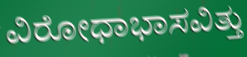
ವಿರೋಧಾಭಾಸವಿತ್ತು